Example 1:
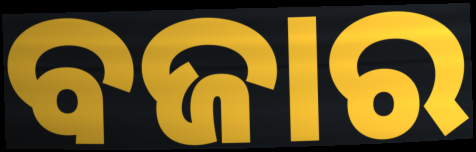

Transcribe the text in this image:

ବଜାର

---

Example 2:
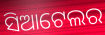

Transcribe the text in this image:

ସିଆଟେଲର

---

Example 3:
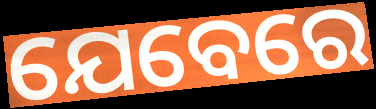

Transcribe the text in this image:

ଯେବେରେ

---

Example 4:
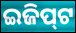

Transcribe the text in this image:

ଇଜିପ୍‍ଟ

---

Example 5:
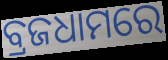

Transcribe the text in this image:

ବ୍ରଜଧାମରେ